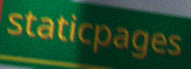
staticpages